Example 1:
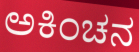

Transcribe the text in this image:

ಅಕಿಂಚನ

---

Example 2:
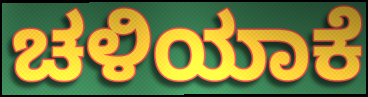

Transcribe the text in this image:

ಚಳಿಯಾಕೆ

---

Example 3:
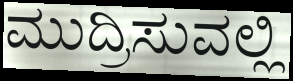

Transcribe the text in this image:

ಮುದ್ರಿಸುವಲ್ಲಿ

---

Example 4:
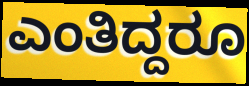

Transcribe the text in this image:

ಎಂತಿದ್ದರೂ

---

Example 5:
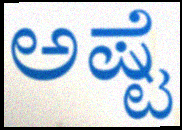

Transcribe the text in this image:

ಅಷ್ಟೆ